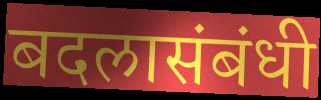
बदलासंबंधी